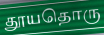
தூயதொரு